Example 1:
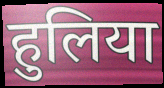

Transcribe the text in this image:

हुलिया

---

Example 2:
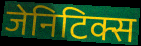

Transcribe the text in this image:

जेनिटिक्स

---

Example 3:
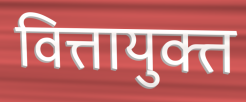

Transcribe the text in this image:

वित्तायुक्त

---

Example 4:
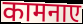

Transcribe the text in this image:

कामनाए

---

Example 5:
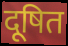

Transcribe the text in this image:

दूषित